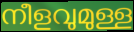
നീളവുമുള്ള